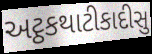
અટ્ઠકથાટીકાદીસુ